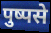
पुष्पसे